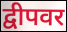
द्वीपवर